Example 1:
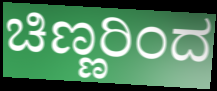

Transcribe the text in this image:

ಚಿಣ್ಣರಿಂದ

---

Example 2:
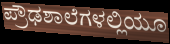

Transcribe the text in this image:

ಪ್ರೌಢಶಾಲೆಗಳಲ್ಲಿಯೂ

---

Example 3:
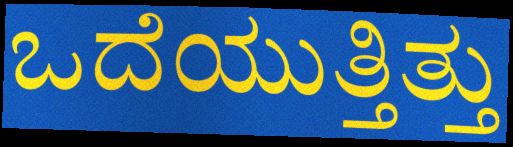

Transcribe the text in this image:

ಒದೆಯುತ್ತಿತ್ತು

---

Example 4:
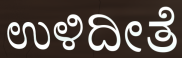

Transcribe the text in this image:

ಉಳಿದೀತೆ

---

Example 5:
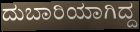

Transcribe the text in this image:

ದುಬಾರಿಯಾಗಿದ್ದ